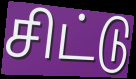
சிட்டு